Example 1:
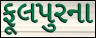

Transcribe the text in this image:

ફૂલપુરના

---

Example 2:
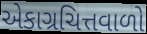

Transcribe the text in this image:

એકાગ્રચિત્તવાળો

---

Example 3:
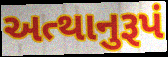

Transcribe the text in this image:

અત્થાનુરૂપં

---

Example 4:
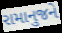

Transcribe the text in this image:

રામાનુજને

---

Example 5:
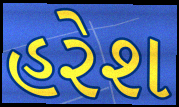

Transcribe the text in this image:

હરેશ